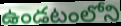
ఉండటంలోని